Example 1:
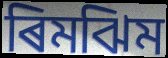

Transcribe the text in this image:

ৰিমঝিম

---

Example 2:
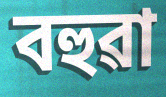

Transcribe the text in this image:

বহুৱা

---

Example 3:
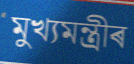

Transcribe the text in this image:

মুখ্যমন্ত্ৰীৰ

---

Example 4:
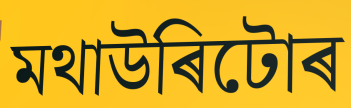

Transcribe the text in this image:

মথাউৰিটোৰ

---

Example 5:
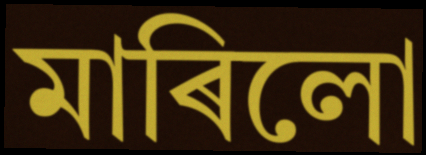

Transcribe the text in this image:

মাৰিলো